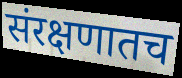
संरक्षणातच